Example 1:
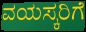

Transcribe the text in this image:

ವಯಸ್ಕರಿಗೆ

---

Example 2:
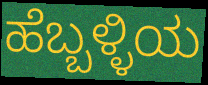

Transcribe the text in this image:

ಹೆಬ್ಬಳ್ಳಿಯ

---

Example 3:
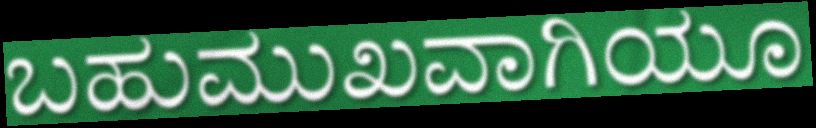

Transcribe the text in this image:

ಬಹುಮುಖವಾಗಿಯೂ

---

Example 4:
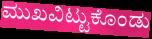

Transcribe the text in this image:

ಮುಖವಿಟ್ಟುಕೊಂಡು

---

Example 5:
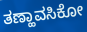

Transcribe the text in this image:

ತಣ್ಹಾವಸಿಕೋ